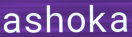
ashoka